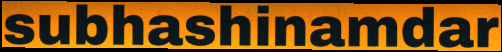
subhashinamdar